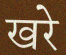
खरे